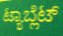
ಟ್ಯಾಬ್ಲೆಟ್